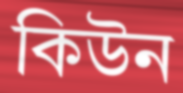
কিউন